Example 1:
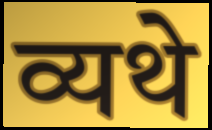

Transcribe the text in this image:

व्यथे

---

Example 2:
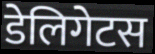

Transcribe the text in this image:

डेलिगेटस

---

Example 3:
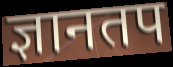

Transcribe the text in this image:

ज्ञानतप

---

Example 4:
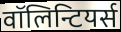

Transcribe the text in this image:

वॉलिन्टियर्स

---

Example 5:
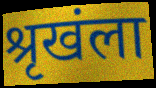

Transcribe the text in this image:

श्रृखंला